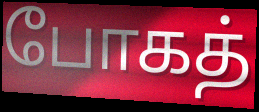
போகத்